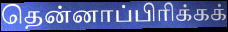
தென்னாப்பிரிக்கக்